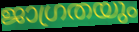
ജാഗ്രതയും